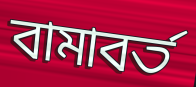
বামাবর্ত